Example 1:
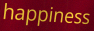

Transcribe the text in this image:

happiness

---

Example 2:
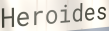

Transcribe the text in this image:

Heroides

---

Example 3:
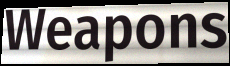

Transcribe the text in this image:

Weapons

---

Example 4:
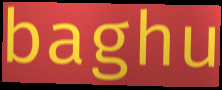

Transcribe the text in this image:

baghu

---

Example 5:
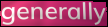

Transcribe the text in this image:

generally